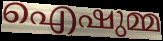
ഐഷുമ്മ